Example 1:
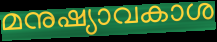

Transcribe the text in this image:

മനുഷ്യാവകാശ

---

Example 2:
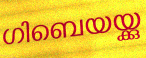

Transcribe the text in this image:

ഗിബെയയ്ക്കു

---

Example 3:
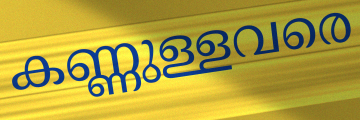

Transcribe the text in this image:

കണ്ണുള്ളവരെ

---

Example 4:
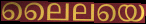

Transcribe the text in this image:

ലൈലയെ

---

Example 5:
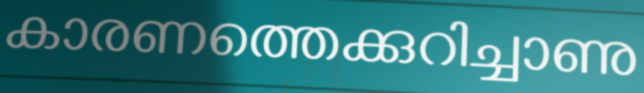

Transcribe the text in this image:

കാരണത്തെക്കുറിച്ചാണു